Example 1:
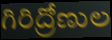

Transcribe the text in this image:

గిరిద్రోణుల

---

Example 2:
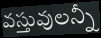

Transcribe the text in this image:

వస్తువులన్నీ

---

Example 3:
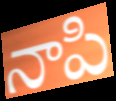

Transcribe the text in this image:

నాపి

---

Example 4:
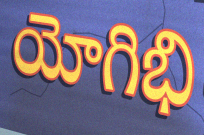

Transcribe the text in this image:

యోగిభి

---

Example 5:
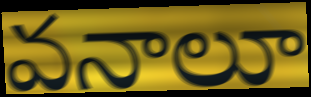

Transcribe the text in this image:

వనాలూ